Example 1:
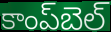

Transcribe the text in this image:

కాంప్‌బెల్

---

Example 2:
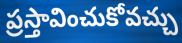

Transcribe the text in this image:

ప్రస్తావించుకోవచ్చు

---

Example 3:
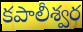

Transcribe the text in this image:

కపాలీశ్వర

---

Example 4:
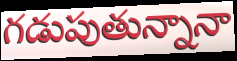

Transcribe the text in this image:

గడుపుతున్నానా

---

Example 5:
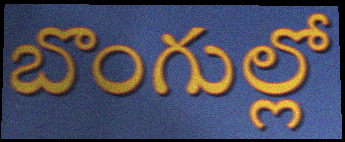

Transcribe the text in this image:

బొంగుల్లో